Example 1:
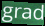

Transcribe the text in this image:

grad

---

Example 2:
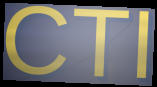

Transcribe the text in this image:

CTI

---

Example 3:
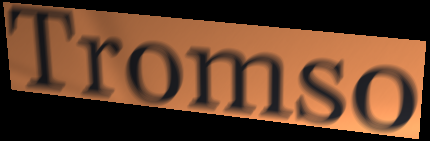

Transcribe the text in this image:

Tromso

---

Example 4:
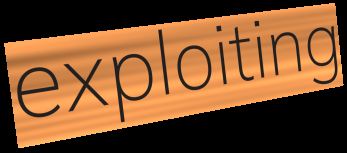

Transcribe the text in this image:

exploiting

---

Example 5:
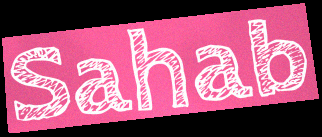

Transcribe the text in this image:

Sahab